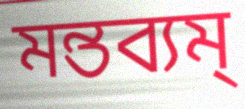
মন্তব্যম্